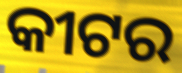
କୀଟର